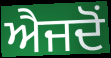
ਐਜਦੋਂ